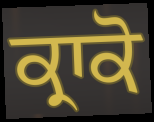
ਕ੍ਰਾਕੋ